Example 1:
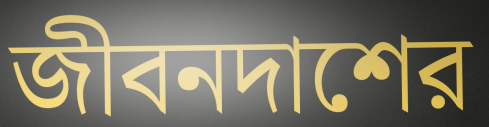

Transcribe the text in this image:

জীবনদাশের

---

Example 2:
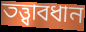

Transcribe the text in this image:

তত্ত্বাবধান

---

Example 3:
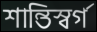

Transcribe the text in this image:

শান্তিস্বর্গ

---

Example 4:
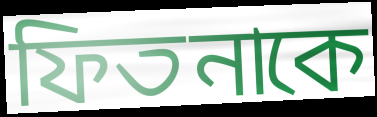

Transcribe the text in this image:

ফিতনাকে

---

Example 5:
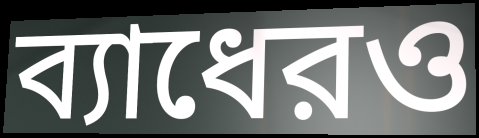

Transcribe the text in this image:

ব্যাধেরও